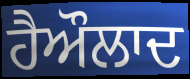
ਹੈਔਲਾਦ